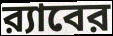
র‍্যাবের